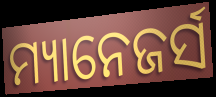
ମ୍ୟାନେଜର୍ସ